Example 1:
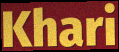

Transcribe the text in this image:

Khari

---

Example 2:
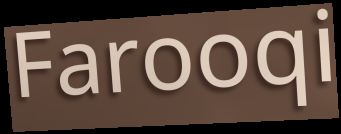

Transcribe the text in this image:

Farooqi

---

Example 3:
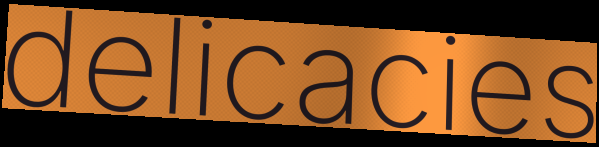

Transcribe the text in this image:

delicacies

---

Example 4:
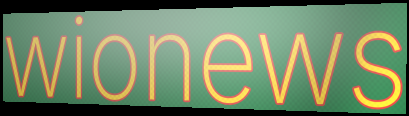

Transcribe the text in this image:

wionews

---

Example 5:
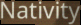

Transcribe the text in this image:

Nativity